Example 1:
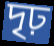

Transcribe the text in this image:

দৃঢ়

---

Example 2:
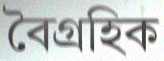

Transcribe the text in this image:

বৈগ্রহিক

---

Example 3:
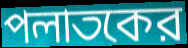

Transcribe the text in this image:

পলাতকের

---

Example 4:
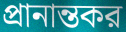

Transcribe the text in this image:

প্রানান্তকর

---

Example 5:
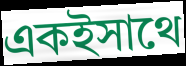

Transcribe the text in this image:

একইসাথে